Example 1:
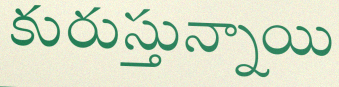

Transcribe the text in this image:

కురుస్తున్నాయి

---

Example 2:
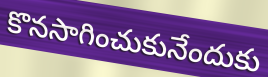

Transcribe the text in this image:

కొనసాగించుకునేందుకు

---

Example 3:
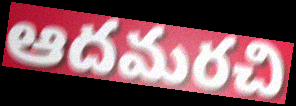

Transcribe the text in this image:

ఆదమరచి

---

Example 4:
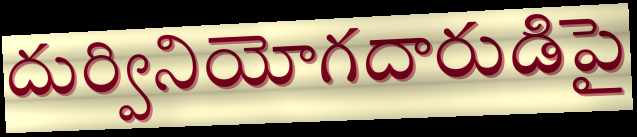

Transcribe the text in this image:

దుర్వినియోగదారుడిపై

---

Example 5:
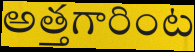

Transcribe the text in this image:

అత్తగారింట